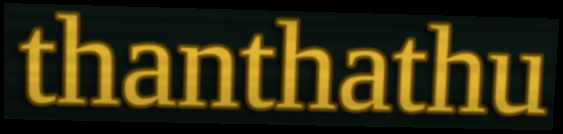
thanthathu